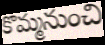
కొమ్మనుంచి